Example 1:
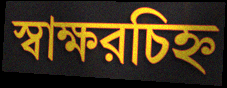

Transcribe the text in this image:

স্বাক্ষরচিহ্ন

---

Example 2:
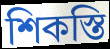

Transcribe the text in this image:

শিকস্তি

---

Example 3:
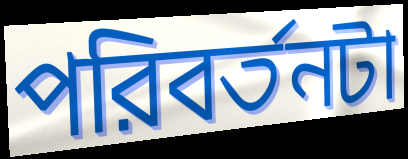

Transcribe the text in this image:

পরিবর্তনটা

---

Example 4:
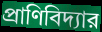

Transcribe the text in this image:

প্রাণিবিদ্যার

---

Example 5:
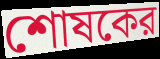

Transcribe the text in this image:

শোষকের